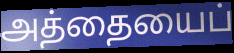
அத்தையைப்